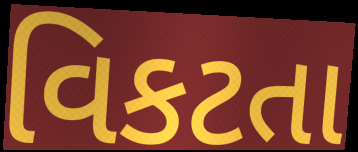
વિકટતા